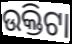
ଉକ୍ତିଟା